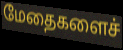
மேதைகளைச்